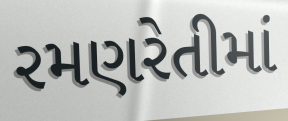
રમણરેતીમાં